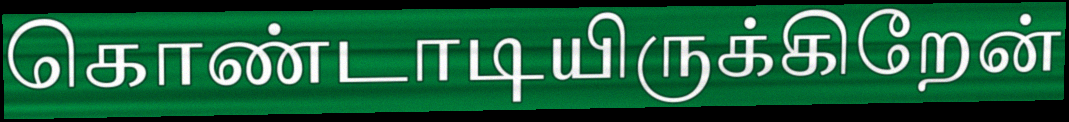
கொண்டாடியிருக்கிறேன்